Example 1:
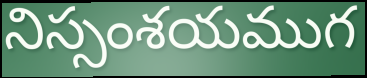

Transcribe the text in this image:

నిస్సంశయముగ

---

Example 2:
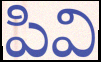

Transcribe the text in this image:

పివి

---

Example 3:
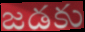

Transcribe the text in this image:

జడకు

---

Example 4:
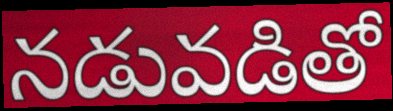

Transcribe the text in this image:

నడువడితో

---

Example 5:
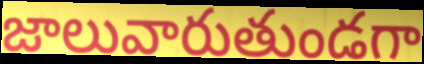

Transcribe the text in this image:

జాలువారుతుండగా